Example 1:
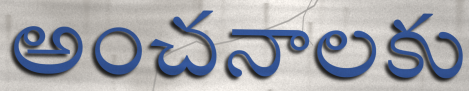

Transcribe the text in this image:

అంచనాలకు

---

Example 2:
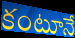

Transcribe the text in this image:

కంటూనే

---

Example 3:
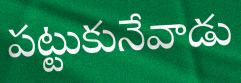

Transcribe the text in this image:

పట్టుకునేవాడు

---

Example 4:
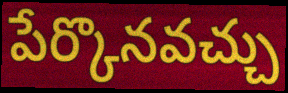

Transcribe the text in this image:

పేర్కొనవచ్చు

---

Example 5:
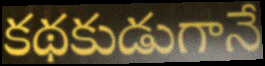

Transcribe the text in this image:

కథకుడుగానే